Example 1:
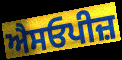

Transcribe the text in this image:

ਐਸਓਪੀਜ਼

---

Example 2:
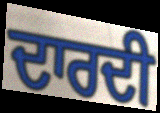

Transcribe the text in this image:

ਦਾਰਦੀ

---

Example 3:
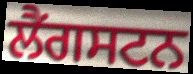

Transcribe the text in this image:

ਲੈਂਗਸਟਨ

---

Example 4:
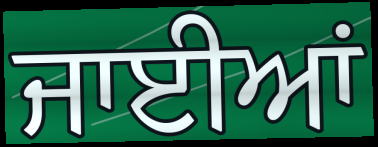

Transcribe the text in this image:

ਜਾਈਆਂ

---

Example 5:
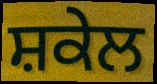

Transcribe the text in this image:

ਸ਼ਕੇਲ